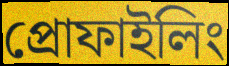
প্রোফাইলিং